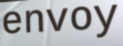
envoy